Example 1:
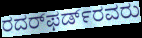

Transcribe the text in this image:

ರದರ್‌ಫರ್ಡ್‌ರವರು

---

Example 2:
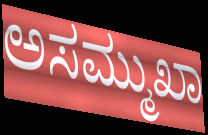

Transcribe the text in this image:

ಅಸಮ್ಮುಖಾ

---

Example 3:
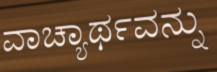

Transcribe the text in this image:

ವಾಚ್ಯಾರ್ಥವನ್ನು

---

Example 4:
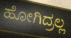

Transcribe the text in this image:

ಹೋಗಿದ್ರಲ್ಲ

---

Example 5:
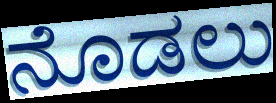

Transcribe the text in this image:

ನೊಡಲು